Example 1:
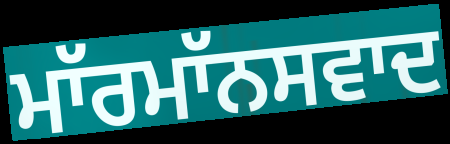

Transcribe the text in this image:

ਮਾੱਰਮਾੱਨਸਵਾਦ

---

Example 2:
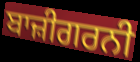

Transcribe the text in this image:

ਬਾਜ਼ੀਗਰਨੀ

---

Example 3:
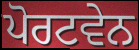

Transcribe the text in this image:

ਪੋਰਟਵੇਨ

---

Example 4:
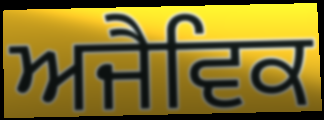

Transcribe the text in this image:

ਅਜੈਵਿਕ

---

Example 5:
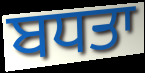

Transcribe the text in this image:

ਬਧਤਾ